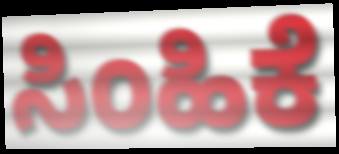
ಸಿಂಹಿಕೆ